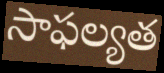
సాఫల్యత